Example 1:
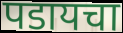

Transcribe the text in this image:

पडायचा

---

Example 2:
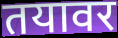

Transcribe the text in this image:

तयावर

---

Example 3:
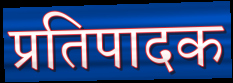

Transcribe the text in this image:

प्रतिपादक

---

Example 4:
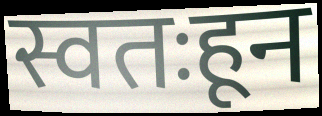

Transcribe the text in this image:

स्वतःहून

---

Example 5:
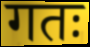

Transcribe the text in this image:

गतः